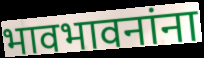
भावभावनांना